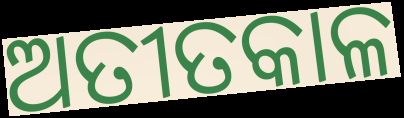
ଅତୀତକାଳ